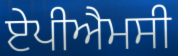
ਏਪੀਐਮਸੀ